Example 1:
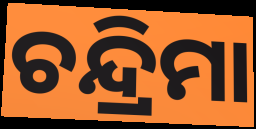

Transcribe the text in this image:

ଚନ୍ଦ୍ରିମା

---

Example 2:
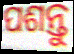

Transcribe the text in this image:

ପଶନ୍ତୁ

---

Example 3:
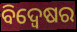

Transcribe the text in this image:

ବିଦ୍ୱେଷର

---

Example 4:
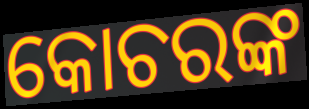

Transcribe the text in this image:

କୋଚରଙ୍କ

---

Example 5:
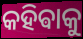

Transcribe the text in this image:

କହିଵାକୁ